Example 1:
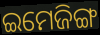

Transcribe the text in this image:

ଇମେଜିଙ୍ଗ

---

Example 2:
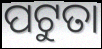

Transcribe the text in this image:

ପଟୁତା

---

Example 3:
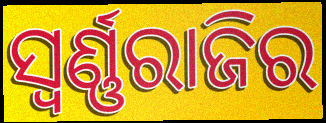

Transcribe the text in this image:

ସ୍ଵର୍ଣ୍ଣରାଜିର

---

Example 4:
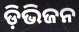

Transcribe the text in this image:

ଡ଼ିଭିଜନ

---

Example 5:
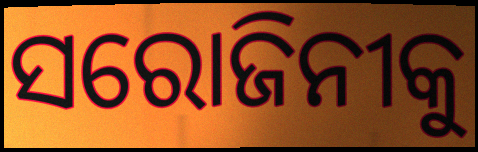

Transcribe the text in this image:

ସରୋଜିନୀକୁ